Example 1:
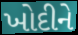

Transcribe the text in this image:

ખોદીને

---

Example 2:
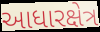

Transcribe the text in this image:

આધારક્ષેત્ર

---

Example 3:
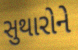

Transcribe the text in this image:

સુથારોને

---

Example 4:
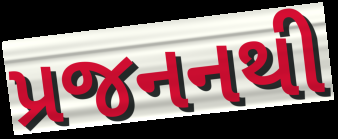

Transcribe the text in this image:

પ્રજનનથી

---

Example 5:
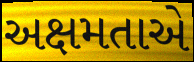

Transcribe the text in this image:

અક્ષમતાએ